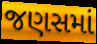
જણસમાં